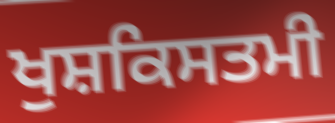
ਖੁਸ਼ਕਿਸਤਮੀ